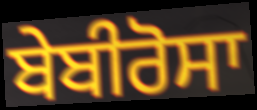
ਬੇਬੀਰੋਸਾ